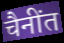
चैनींत